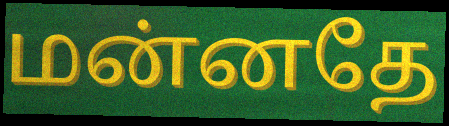
மன்னதே